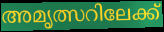
അമൃത്സറിലേക്ക്